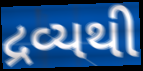
દ્રવ્યથી